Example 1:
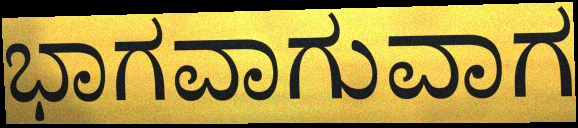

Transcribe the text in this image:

ಭಾಗವಾಗುವಾಗ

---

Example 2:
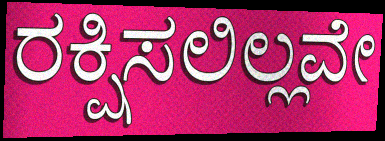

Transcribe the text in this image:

ರಕ್ಷಿಸಲಿಲ್ಲವೇ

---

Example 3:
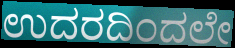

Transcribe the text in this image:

ಉದರದಿಂದಲೇ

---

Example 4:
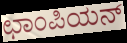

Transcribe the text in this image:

ಛಾಂಪಿಯನ್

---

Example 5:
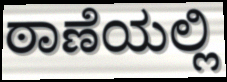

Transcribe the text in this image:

ಠಾಣೆಯಲ್ಲಿ